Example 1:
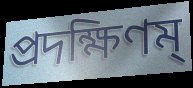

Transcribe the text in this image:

প্রদক্ষিণম্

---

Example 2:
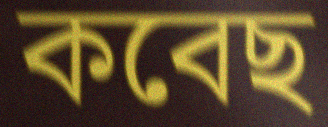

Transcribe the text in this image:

কবেছ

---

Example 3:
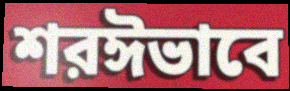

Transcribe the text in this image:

শরঈভাবে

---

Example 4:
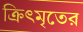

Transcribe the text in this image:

ক্রিৎমৃতের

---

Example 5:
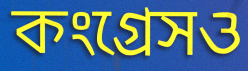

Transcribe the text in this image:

কংগ্রেসও